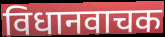
विधानवाचक